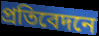
প্রতিবেদনে